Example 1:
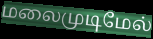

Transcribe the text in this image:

மலைமுடிமேல்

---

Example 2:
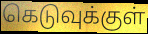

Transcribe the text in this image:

கெடுவுக்குள்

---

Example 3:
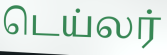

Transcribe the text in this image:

டெய்லர்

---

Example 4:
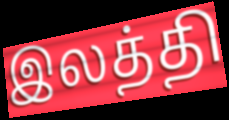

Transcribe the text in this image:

இலத்தி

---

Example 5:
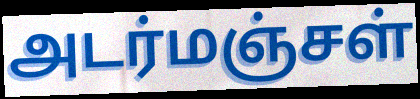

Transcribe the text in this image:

அடர்மஞ்சள்